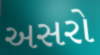
અસરો